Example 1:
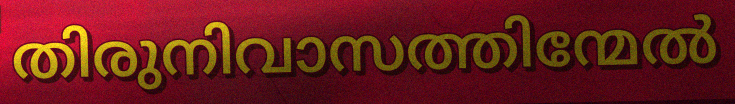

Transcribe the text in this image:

തിരുനിവാസത്തിന്മേൽ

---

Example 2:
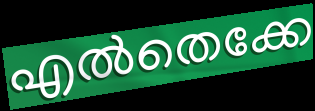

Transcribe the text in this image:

എൽതെക്കേ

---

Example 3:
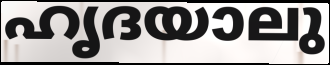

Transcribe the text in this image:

ഹൃദയാലു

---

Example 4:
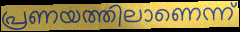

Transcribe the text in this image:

പ്രണയത്തിലാണെന്ന്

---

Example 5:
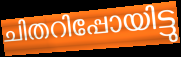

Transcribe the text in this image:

ചിതറിപ്പോയിട്ടു